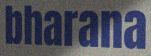
bharana